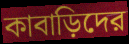
কাবাড়িদের